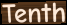
Tenth